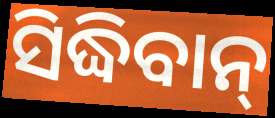
ସିଦ୍ଧିବାନ୍